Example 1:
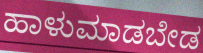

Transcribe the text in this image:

ಹಾಳುಮಾಡಬೇಡ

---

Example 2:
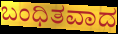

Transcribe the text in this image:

ಬಂಧಿತವಾದ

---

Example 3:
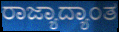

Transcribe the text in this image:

ರಾಜ್ಯಾದ್ಯಾಂತ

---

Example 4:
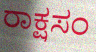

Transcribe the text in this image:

ರಾಕ್ಷಸಂ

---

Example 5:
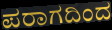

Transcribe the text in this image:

ಪರಾಗದಿಂದ